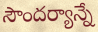
సౌందర్యాన్నే